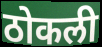
ठोकली